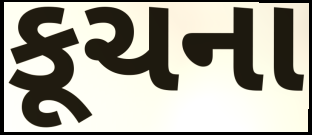
કૂચના